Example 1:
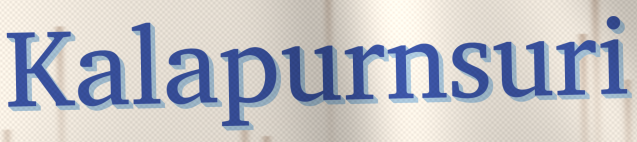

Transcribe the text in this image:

Kalapurnsuri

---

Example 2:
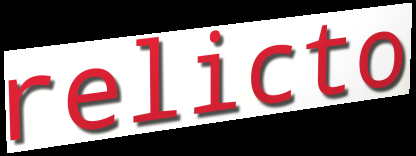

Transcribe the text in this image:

relicto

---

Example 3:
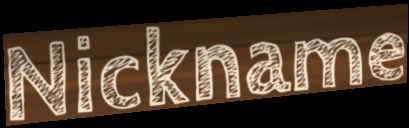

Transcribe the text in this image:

Nickname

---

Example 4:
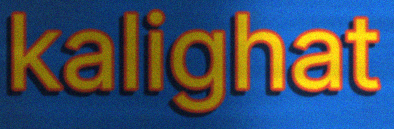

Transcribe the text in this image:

kalighat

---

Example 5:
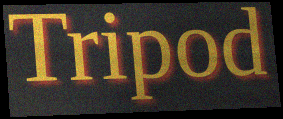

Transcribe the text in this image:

Tripod